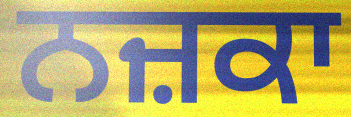
ਨਜ਼ਕਾ